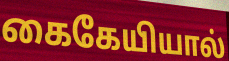
கைகேயியால்